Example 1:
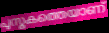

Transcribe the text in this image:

പുസ്തകത്തെയാണ്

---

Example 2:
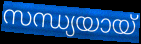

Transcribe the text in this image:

സന്ധ്യയായ്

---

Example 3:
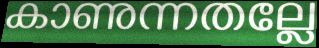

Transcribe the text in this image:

കാണുന്നതല്ലേ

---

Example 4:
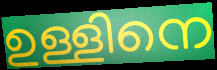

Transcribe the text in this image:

ഉള്ളിനെ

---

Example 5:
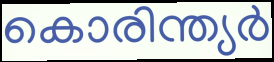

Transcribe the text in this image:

കൊരിന്ത്യർ